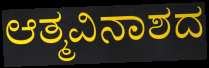
ಆತ್ಮವಿನಾಶದ